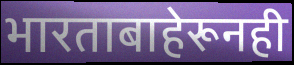
भारताबाहेरूनही